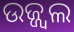
ଉଜ୍ଜ୍ୱଲ